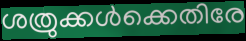
ശത്രുക്കൾക്കെതിരേ